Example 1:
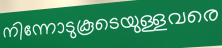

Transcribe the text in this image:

നിന്നോടുകൂടെയുള്ളവരെ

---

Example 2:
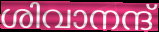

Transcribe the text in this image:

ശിവാനന്ദ്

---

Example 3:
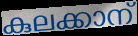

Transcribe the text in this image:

കുലക്കാന്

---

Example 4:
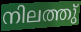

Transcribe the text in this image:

നിലത്തു്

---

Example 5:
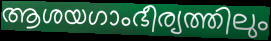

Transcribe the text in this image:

ആശയഗാംഭീര്യത്തിലും